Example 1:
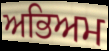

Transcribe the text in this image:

ਅਭਿਅਮ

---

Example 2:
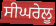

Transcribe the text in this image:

ਸੀਘਰੇਲੂ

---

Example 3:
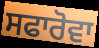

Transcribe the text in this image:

ਸਫਾਰੋਵਾ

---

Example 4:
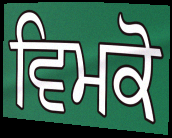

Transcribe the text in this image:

ਵਿਮਕੋ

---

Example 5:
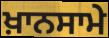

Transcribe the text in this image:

ਖ਼ਾਨਸਾਮੇ